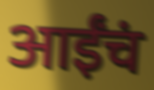
आईंचं